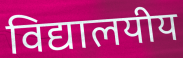
विद्यालयीय